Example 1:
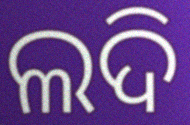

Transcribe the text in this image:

ଲଦି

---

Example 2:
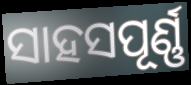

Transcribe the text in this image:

ସାହସପୂର୍ଣ୍ଣ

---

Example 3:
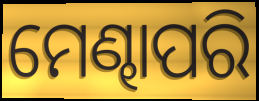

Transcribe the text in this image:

ମେଣ୍ଢାପରି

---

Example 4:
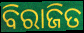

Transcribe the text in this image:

ବିରାଜିତ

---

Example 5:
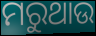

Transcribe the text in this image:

ମରୁଥାଉ